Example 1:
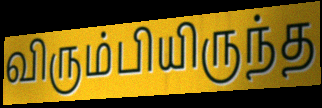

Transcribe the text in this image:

விரும்பியிருந்த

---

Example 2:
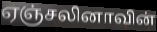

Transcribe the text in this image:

ஏஞ்சலினாவின்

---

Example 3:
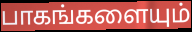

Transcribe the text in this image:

பாகங்களையும்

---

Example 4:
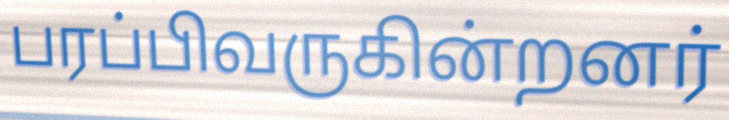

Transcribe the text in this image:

பரப்பிவருகின்றனர்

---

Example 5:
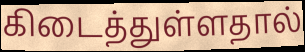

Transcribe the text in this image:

கிடைத்துள்ளதால்